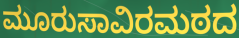
ಮೂರುಸಾವಿರಮಠದ